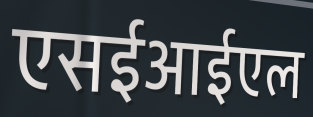
एसईआईएल